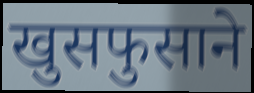
खुसफुसाने